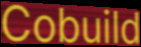
Cobuild